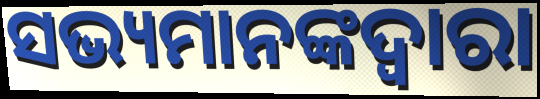
ସଭ୍ୟମାନଙ୍କଦ୍ୱାରା